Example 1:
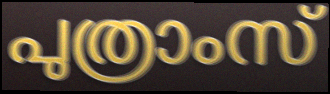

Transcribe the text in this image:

പുത്രാംസ്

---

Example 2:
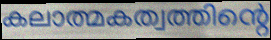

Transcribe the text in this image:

കലാത്മകത്വത്തിന്റെ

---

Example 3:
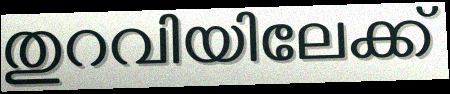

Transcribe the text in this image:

തുറവിയിലേക്ക്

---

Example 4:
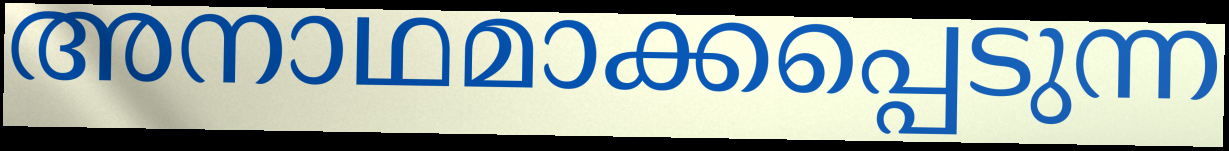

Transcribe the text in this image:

അനാഥമാക്കപ്പെടുന്ന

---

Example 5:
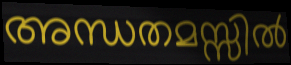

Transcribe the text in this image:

അന്ധതമസ്സിൽ